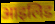
आइलिड